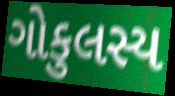
ગોકુલસ્ય